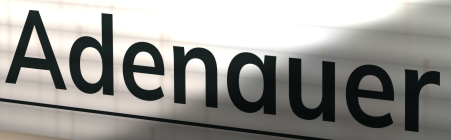
Adenauer